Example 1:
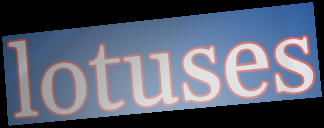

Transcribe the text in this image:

lotuses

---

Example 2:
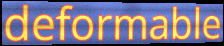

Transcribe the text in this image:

deformable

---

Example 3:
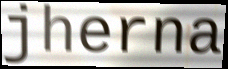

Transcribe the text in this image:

jherna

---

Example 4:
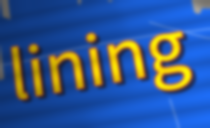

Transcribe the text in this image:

lining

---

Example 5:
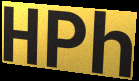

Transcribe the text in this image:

HPh